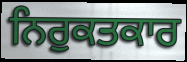
ਨਿਰੁਕਤਕਾਰ